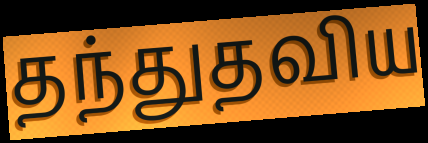
தந்துதவிய